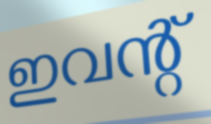
ഇവന്റ്